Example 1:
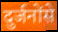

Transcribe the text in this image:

दुर्जनोंसे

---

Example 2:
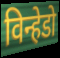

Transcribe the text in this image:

विन्हेडो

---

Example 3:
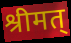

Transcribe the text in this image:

श्रीमत्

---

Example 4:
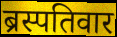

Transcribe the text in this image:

ब्रस्पतिवार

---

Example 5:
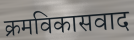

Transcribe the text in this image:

क्रमविकासवाद